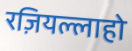
रज़ियल्लाहो